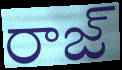
రాజ్